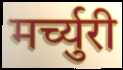
मर्च्युरी